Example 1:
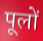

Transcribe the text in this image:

पूलों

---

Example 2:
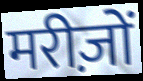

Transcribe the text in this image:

मरीज़ों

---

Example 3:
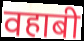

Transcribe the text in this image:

वहाबी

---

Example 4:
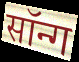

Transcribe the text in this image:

सॉन्ग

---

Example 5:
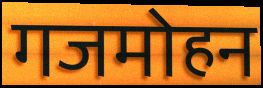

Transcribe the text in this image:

गजमोहन